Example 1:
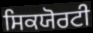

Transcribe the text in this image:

ਸਿਕਯੋਰਟੀ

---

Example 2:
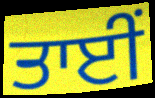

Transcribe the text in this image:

ਤਾਈਂ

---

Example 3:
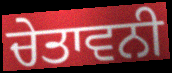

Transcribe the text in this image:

ਚੇਤਾਵਨੀ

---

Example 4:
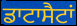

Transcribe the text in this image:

ਡਾਟਾਸੈਟਾਂ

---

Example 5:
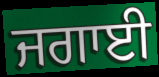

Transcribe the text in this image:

ਜਗਾਈ